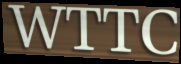
WTTC